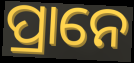
ପ୍ରାନେ